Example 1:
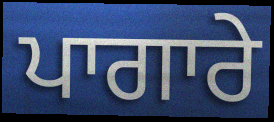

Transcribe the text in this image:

ਪਾਗਾਰੇ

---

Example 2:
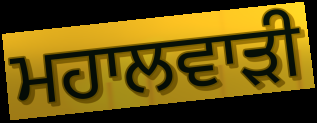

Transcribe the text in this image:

ਮਹਾਲਵਾੜੀ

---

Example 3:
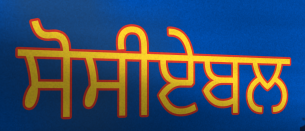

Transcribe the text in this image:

ਸੋਸੀਏਬਲ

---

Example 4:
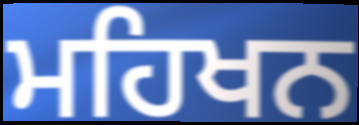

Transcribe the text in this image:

ਮਹਿਖਨ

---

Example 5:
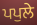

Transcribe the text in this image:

ਪਪੁਲੇ